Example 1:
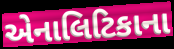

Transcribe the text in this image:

એનાલિટિકાના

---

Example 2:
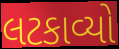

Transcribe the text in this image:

લટકાવ્યો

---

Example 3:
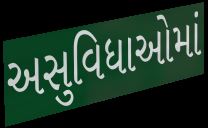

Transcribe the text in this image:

અસુવિધાઓમાં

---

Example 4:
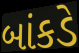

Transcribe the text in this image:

બાંકડે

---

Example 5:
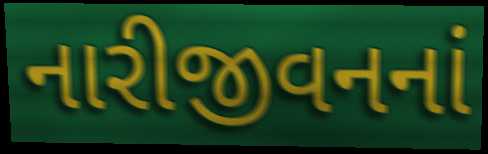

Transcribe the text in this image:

નારીજીવનનાં